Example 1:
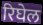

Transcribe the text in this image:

रिघेल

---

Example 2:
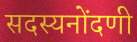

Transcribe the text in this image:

सदस्यनोंदणी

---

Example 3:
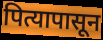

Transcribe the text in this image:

पित्यापासून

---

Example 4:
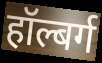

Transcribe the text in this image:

हॉल्बर्ग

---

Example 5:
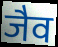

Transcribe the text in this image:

जैव